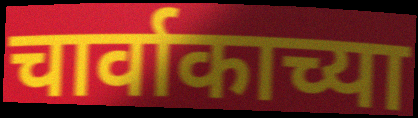
चार्वाकाच्या